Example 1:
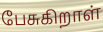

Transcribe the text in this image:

பேசுகிறாள்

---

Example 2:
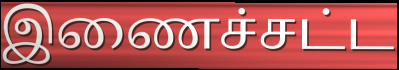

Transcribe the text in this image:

இணைச்சட்ட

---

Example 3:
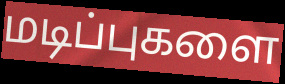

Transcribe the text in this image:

மடிப்புகளை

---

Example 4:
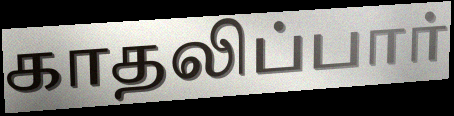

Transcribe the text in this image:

காதலிப்பார்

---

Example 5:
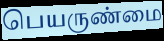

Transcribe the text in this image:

பெயருண்மை